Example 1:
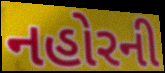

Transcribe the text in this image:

નહોરની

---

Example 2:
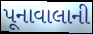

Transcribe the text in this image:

પૂનાવાલાની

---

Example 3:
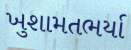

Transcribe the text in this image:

ખુશામતભર્યા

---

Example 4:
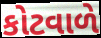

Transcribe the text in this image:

કોટવાળે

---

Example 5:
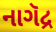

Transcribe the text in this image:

નાગૅદ્ર